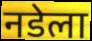
नडेला